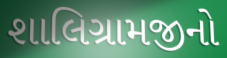
શાલિગ્રામજીનો